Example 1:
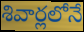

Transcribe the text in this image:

శివార్లలోనే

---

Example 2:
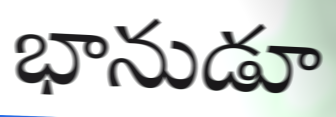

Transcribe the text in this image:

భానుడూ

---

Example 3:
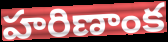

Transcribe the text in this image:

హరిణాంక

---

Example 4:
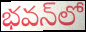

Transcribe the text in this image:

భవన్‌లో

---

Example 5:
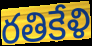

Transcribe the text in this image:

రతికేళి